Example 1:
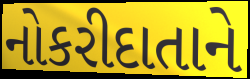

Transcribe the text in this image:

નોકરીદાતાને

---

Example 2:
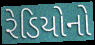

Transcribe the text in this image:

રેડિયોનો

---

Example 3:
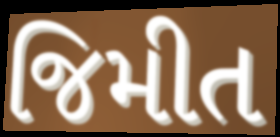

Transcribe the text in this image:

જિમીત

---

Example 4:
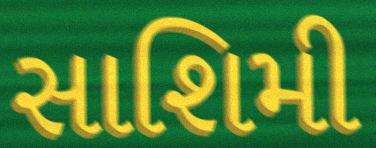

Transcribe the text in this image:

સાશિમી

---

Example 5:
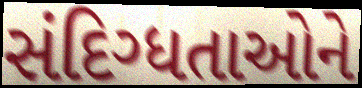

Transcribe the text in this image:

સંદિગ્ધતાઓને